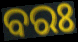
ବରଃ